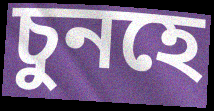
চুনহে